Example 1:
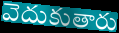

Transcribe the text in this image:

వెదుకుతారు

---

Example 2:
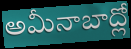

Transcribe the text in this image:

అమీనాబాద్లో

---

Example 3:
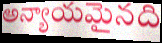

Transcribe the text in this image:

అన్యాయమైనది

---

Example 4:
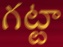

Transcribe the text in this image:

గట్టా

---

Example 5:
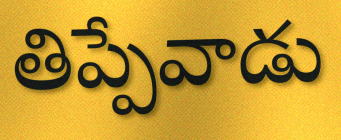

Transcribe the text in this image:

తిప్పేవాడు